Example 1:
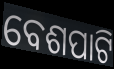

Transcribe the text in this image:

ବେଶପାଟି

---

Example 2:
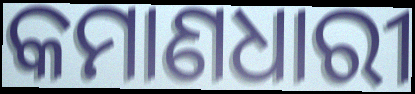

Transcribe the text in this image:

କମାଣଧାରୀ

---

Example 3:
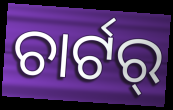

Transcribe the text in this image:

ଚାର୍ଟର୍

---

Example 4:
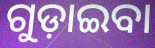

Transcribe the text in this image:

ଗୁଡ଼ାଇବା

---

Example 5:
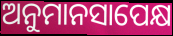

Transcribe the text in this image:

ଅନୁମାନସାପେକ୍ଷ